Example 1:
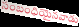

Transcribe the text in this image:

సంబంధియైనవాడు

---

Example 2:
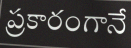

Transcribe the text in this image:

ప్రకారంగానే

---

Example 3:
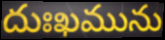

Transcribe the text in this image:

దుఃఖమును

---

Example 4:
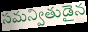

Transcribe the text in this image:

సమన్వితుడైన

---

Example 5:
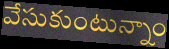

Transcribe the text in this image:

వేసుకుంటున్నాం